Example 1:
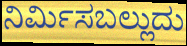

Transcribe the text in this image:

ನಿರ್ಮಿಸಬಲ್ಲುದು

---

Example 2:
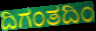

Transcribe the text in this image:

ದಿಗಂತದಿಂ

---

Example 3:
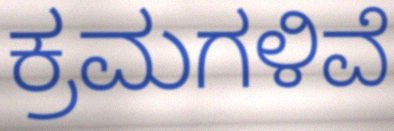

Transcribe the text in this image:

ಕ್ರಮಗಳಿವೆ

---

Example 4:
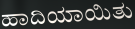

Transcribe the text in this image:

ಹಾದಿಯಾಯಿತು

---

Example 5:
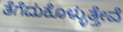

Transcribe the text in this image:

ತೆಗೆದುಕೊಳ್ಳುತ್ತೇವೆ